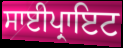
ਸਾਈਪ੍ਰਾਇਟ